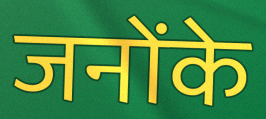
जनोंके